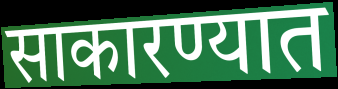
साकारण्यात